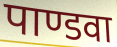
पाण्डवा